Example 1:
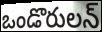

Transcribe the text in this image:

ఒండొరులన్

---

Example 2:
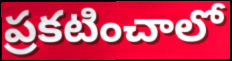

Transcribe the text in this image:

ప్రకటించాలో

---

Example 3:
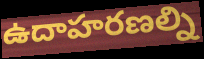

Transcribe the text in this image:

ఉదాహరణల్ని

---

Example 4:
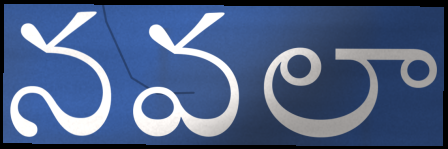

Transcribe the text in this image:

నవలా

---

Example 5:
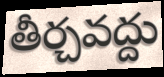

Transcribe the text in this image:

తీర్చవద్దు